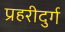
प्रहरीदुर्ग